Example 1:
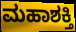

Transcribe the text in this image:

ಮಹಾಶಕ್ತಿ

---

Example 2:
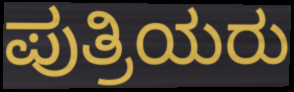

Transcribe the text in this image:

ಪುತ್ರಿಯರು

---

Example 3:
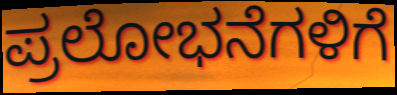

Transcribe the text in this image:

ಪ್ರಲೋಭನೆಗಳಿಗೆ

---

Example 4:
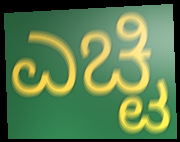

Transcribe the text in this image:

ಎಚ್ಟಿ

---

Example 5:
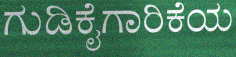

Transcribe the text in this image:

ಗುಡಿಕೈಗಾರಿಕೆಯ